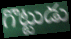
గొట్టుడు